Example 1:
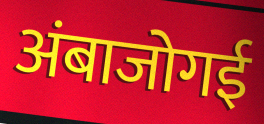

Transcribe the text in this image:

अंबाजोगई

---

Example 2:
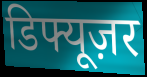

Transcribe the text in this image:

डिफ्यूज़र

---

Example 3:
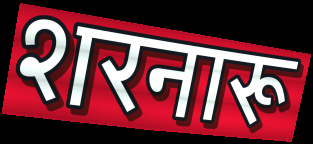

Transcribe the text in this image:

शरनारू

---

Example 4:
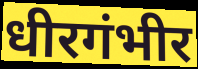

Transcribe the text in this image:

धीरगंभीर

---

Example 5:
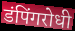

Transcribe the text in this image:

डंपिंगरोधी